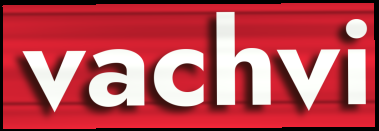
vachvi